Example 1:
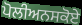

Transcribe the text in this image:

ਪੋਲੀਅਨਸਕੋਏ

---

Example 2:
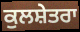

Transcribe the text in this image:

ਕੁਲਸ਼ੇਤਰਾ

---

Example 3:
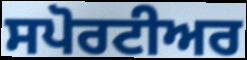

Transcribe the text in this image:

ਸਪੋਰਟੀਅਰ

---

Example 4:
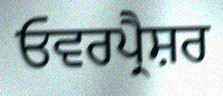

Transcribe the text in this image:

ਓਵਰਪ੍ਰੈਸ਼ਰ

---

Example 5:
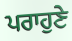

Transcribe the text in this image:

ਪਰਾਹੁਣੇ